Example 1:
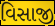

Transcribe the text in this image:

વિસાજી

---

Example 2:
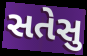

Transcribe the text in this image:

સતેસુ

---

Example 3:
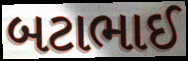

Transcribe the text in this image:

બટાભાઈ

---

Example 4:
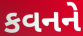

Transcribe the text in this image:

કવનને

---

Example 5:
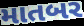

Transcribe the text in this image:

માતબર